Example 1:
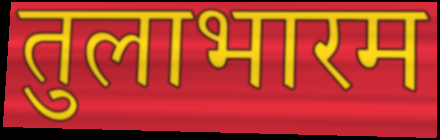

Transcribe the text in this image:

तुलाभारम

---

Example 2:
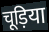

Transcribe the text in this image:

चूड़िया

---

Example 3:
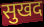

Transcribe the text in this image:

सुखद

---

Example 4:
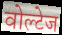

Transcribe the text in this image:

वोल्टेज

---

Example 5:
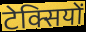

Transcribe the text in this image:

टेक्सियों